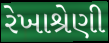
રેખાશ્રેણી